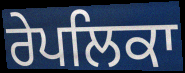
ਰੇਪਲਿਕਾ